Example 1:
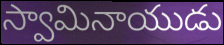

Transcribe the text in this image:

స్వామినాయుడు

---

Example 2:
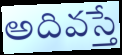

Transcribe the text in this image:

అదివస్తే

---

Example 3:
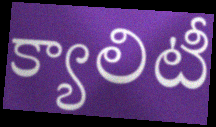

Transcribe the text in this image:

క్యాలిటీ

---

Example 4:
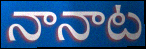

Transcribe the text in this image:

నానాట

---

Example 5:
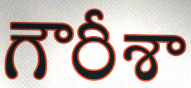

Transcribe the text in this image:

గౌరీశా